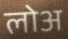
लोअ